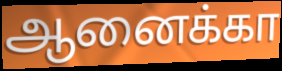
ஆனைக்கா